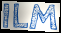
ILM